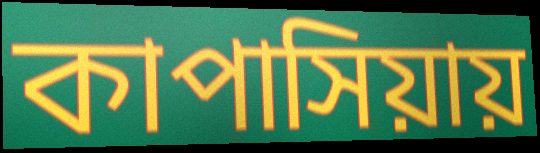
কাপাসিয়ায়